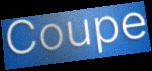
Coupe